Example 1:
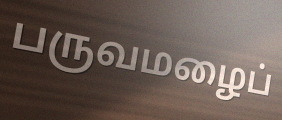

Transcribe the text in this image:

பருவமழைப்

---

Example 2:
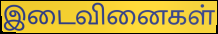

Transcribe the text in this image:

இடைவினைகள்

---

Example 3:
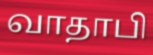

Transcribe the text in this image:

வாதாபி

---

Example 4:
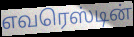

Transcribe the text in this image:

எவரெஸ்டின்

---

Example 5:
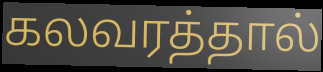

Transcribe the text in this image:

கலவரத்தால்